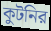
কুটনির